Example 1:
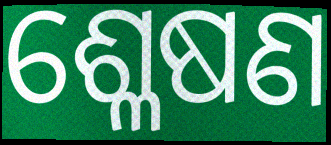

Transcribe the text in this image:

ଶ୍ଳେଷଣ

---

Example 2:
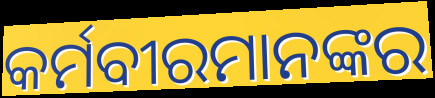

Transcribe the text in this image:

କର୍ମବୀରମାନଙ୍କର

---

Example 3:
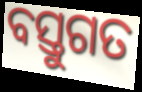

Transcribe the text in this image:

ବସ୍ତୁଗତ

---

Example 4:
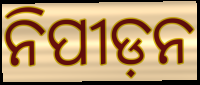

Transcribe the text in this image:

ନିପୀଡ଼ନ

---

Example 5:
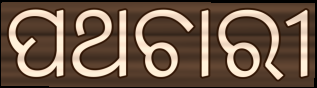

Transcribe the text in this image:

ପଥଚାରୀ